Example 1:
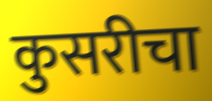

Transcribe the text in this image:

कुसरीचा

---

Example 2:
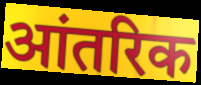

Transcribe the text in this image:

आंतरिक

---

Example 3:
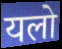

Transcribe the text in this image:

यलो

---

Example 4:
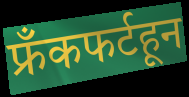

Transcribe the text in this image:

फ्रँकफर्टहून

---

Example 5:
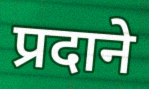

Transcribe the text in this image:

प्रदाने